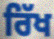
ਰਿੱਖ